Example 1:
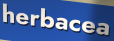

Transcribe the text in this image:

herbacea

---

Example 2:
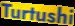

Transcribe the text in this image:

Turtushi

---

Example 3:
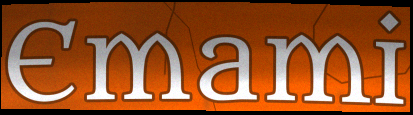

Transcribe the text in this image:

Emami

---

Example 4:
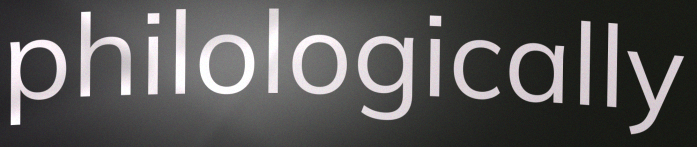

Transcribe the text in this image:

philologically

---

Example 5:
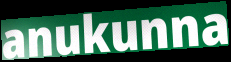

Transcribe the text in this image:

anukunna